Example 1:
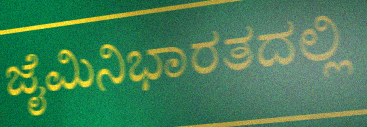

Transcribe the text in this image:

ಜೈಮಿನಿಭಾರತದಲ್ಲಿ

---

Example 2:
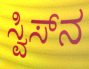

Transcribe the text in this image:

ಸ್ವಿಸ್‌ನ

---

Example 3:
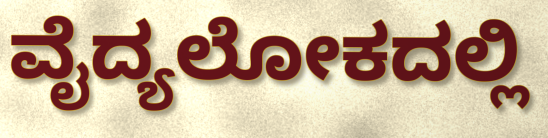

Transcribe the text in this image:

ವೈದ್ಯಲೋಕದಲ್ಲಿ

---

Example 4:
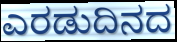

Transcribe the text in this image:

ಎರಡುದಿನದ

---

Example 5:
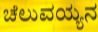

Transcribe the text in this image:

ಚೆಲುವಯ್ಯನ